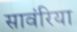
सावंरिया